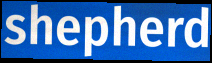
shepherd